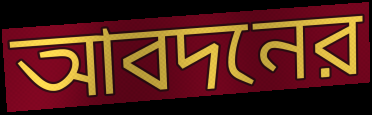
আবদনের